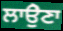
ਲਾਉੇਣਾ